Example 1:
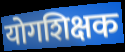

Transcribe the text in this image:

योगशिक्षक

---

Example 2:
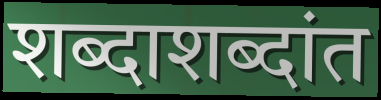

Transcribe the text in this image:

शब्दाशब्दांत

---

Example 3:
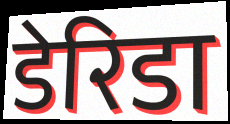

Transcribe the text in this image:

डेरिडा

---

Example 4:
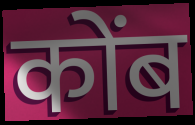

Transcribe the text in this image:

कोंब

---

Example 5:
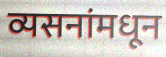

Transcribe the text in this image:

व्यसनांमधून